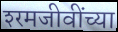
श्रमजीवींच्या